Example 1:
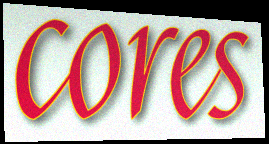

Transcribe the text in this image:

cores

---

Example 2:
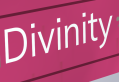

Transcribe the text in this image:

Divinity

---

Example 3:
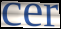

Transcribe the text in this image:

cer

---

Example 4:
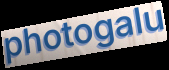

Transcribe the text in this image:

photogalu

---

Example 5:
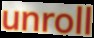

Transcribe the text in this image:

unroll